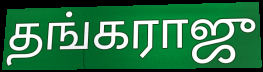
தங்கராஜு